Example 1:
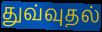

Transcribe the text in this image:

துவ்வுதல்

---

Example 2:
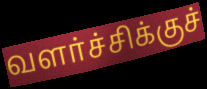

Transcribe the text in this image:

வளர்ச்சிக்குச்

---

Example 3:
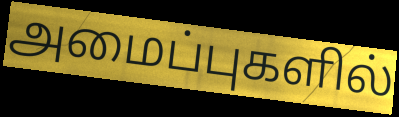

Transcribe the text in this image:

அமைப்புகளில்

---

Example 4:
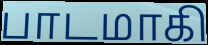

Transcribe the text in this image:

பாடமாகி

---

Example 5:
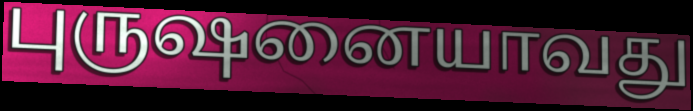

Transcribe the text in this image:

புருஷனையாவது